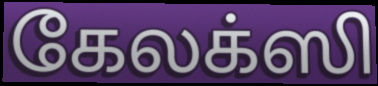
கேலக்ஸி